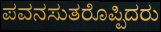
ಪವನಸುತರೊಪ್ಪಿದರು